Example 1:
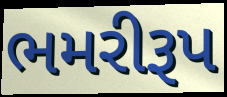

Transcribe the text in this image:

ભમરીરૂપ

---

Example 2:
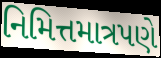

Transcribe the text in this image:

નિમિત્તમાત્રપણે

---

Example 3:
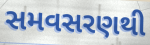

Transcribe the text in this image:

સમવસરણથી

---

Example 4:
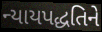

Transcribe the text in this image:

ન્યાયપદ્ધતિને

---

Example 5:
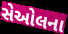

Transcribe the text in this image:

સેઓલના